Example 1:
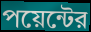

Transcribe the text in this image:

পয়েন্টের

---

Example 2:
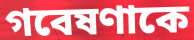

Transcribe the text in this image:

গবেষণাকে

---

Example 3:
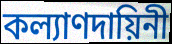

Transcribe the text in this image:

কল্যাণদায়িনী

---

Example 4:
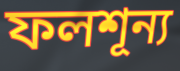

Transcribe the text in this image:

ফলশূন্য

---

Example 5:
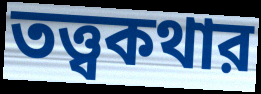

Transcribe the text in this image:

তত্ত্বকথার